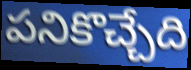
పనికొచ్చేది